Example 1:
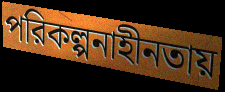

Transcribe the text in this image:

পরিকল্পনাহীনতায়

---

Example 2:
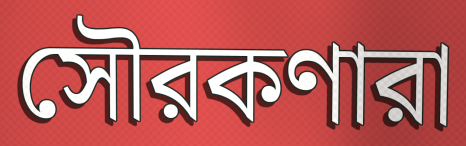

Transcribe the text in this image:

সৌরকণারা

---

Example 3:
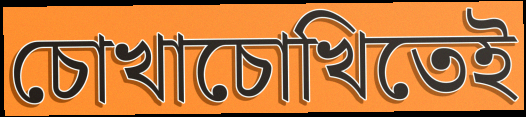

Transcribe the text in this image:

চোখাচোখিতেই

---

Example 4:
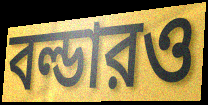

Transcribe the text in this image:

বল্ডারও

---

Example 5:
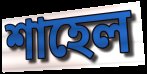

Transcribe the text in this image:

শাহেল